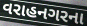
વરાહનગરના